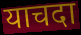
याचदा